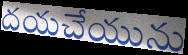
దయచేయును